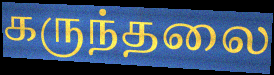
கருந்தலை